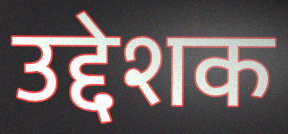
उद्देशक